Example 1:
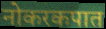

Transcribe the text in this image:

नोकरकपात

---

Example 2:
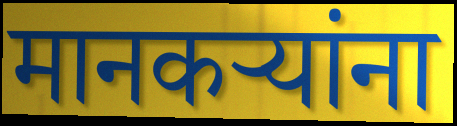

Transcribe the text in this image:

मानकऱ्यांना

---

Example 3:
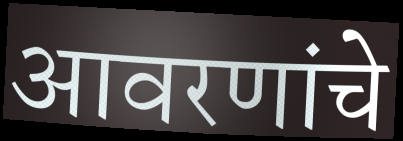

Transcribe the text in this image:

आवरणांचे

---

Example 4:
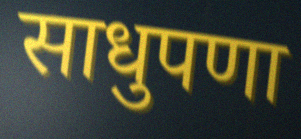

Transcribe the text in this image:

साधुपणा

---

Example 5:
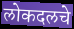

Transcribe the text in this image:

लोकदलचे